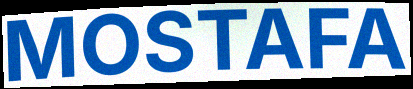
MOSTAFA